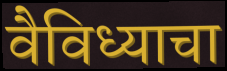
वैविध्याचा